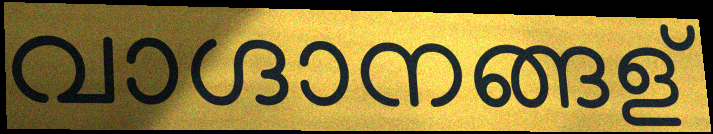
വാഗ്ദാനങ്ങള്